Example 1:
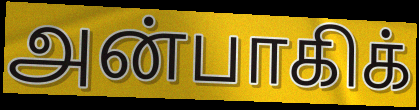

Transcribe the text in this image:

அன்பாகிக்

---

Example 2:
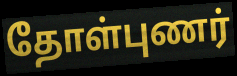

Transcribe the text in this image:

தோள்புணர்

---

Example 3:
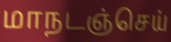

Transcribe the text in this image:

மாநடஞ்செய்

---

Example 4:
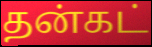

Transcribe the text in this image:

தன்கட்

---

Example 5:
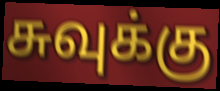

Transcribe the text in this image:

சுவுக்கு